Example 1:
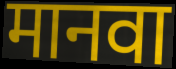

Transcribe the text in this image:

मानवा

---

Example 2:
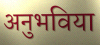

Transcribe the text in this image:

अनुभविया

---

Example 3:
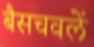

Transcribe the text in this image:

बैसचवलें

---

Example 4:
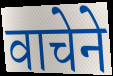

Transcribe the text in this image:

वाचेने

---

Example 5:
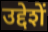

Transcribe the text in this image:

उद्देशें